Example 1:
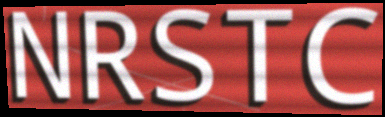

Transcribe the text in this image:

NRSTC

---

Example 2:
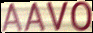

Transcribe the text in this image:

AAVO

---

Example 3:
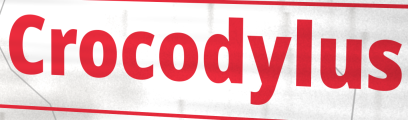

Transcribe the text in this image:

Crocodylus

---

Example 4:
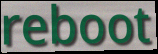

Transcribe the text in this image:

reboot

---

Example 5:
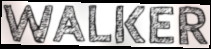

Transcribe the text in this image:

WALKER